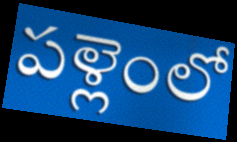
పళ్లెంలో